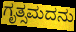
ಗೃತ್ಸಮದನು